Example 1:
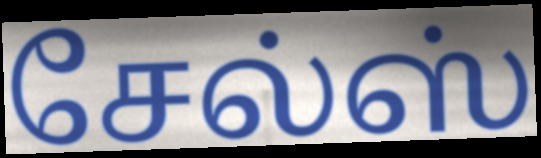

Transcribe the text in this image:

சேல்ஸ்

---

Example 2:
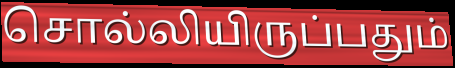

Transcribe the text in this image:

சொல்லியிருப்பதும்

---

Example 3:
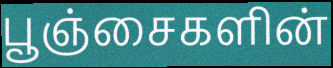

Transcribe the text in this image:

பூஞ்சைகளின்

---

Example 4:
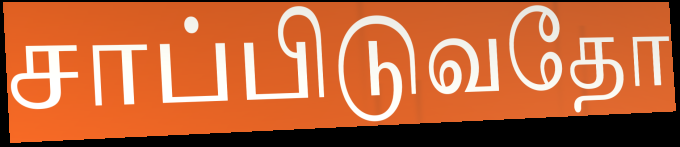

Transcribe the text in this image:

சாப்பிடுவதோ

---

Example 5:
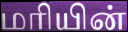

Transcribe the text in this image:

மரியின்